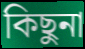
কিছুনা